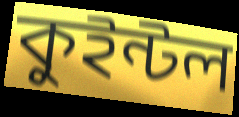
কুইন্টল